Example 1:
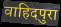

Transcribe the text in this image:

वाहिदपुरा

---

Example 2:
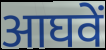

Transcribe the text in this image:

आघवें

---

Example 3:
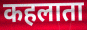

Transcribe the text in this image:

कहलाता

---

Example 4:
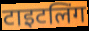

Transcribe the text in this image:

टाइटलिंग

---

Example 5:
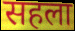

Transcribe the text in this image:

सहला